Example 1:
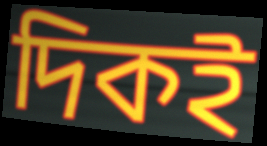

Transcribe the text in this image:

দিকই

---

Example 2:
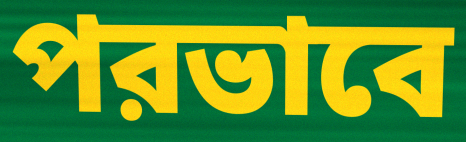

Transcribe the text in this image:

পরভাবে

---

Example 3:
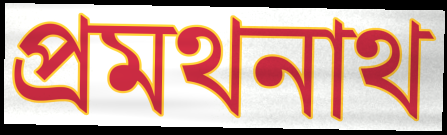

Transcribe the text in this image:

প্রমথনাথ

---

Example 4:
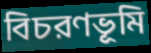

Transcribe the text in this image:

বিচরণভূমি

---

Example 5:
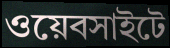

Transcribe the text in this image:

ওয়েবসাইটে